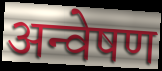
अन्वेषण